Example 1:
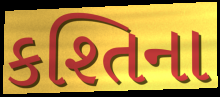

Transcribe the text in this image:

કશ્તિના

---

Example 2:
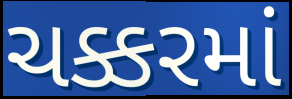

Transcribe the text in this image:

ચક્કરમાં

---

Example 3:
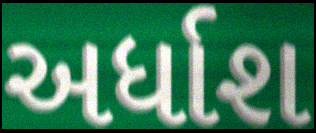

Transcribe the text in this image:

અર્ધાશ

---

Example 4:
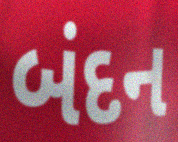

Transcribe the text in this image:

બંદન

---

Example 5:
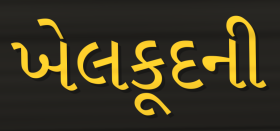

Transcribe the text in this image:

ખેલકૂદની